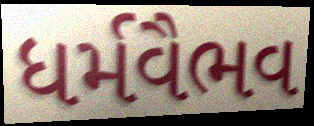
ધર્મવૈભવ